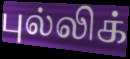
புல்லிக்